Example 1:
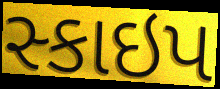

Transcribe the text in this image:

સ્કાઇપ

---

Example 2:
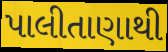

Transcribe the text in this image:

પાલીતાણાથી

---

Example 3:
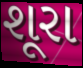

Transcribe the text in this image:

શૂરા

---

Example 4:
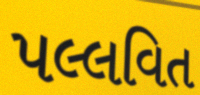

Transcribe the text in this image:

પલ્લવિત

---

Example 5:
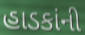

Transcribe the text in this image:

હાડકાંની